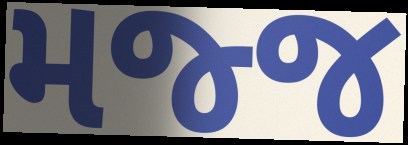
મજ્જ